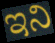
ಇನಿ